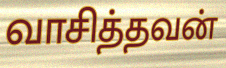
வாசித்தவன்